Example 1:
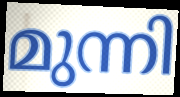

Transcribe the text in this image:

മുന്നി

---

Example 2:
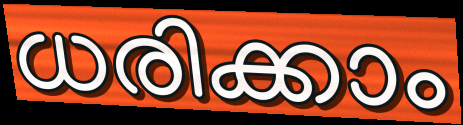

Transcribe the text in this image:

ധരിക്കാം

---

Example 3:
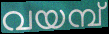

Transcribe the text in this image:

വയമ്പ്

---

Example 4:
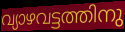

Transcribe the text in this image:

വ്യാഴവട്ടത്തിനു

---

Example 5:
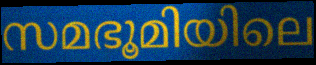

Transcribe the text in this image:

സമഭൂമിയിലെ